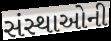
સંસ્થાઓની